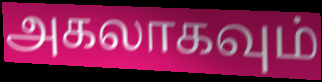
அகலாகவும்